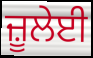
ਜ਼ੂਲੇਈ